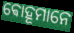
ଵୋହୂମାନେ